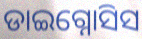
ଡାଇଗ୍ନୋସିସ